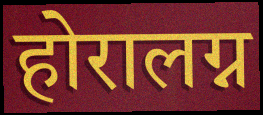
होरालग्न